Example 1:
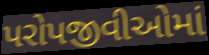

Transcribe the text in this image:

પરોપજીવીઓમાં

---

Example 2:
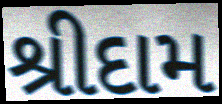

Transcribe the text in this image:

શ્રીદામ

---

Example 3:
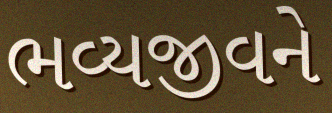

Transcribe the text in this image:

ભવ્યજીવને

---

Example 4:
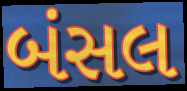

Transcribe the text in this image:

બંસલ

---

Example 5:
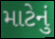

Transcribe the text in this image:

માટેનું